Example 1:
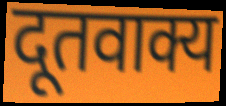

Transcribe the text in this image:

दूतवाक्य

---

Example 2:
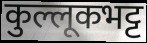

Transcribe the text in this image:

कुल्लूकभट्ट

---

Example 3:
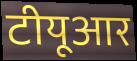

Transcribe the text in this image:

टीयूआर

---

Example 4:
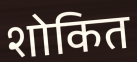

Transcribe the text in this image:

शोकित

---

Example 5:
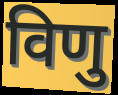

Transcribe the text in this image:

विणु